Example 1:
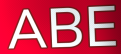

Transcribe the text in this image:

ABE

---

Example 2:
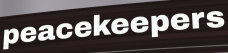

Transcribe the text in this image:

peacekeepers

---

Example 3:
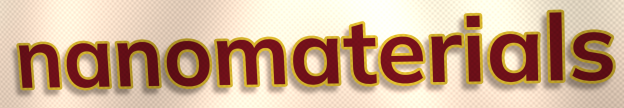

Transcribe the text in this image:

nanomaterials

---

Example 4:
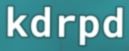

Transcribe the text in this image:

kdrpd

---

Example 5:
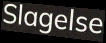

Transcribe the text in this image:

Slagelse